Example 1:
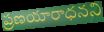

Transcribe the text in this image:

ప్రణయారాధనని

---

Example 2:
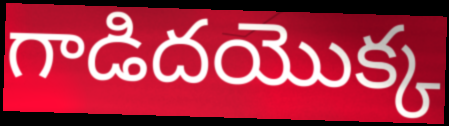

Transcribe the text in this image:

గాడిదయొక్క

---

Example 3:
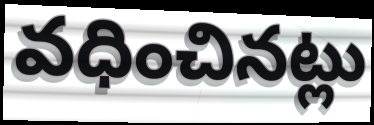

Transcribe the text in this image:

వధించినట్లు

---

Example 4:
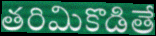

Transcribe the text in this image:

తరిమికొడితే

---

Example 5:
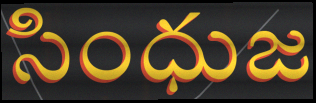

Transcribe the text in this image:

సింధుజ